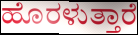
ಹೊರಳುತ್ತಾರೆ